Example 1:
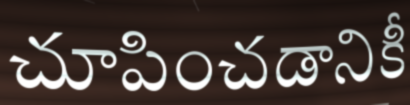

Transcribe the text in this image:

చూపించడానికీ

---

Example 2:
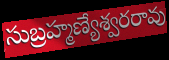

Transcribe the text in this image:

సుబ్రహ్మణ్యేశ్వరరావు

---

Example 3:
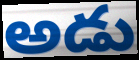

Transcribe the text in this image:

అడు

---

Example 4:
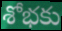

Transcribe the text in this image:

శోభకు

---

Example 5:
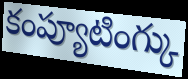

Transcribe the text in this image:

కంప్యూటింగ్కు